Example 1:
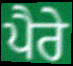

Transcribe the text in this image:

ਪੈਰੇ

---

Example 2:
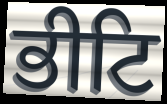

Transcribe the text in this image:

ਭੀਟਿ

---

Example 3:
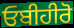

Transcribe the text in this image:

ਓਬੀਹੀਰੋ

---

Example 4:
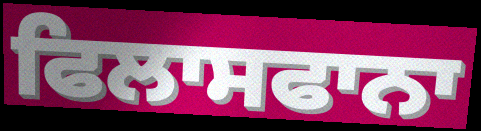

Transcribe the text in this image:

ਫਿਲਾਸਫਾਨਾ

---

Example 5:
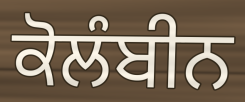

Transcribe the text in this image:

ਕੋਲੰਬੀਨ